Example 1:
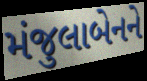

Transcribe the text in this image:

મંજુલાબેનને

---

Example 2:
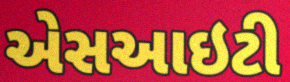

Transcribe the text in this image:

એસઆઇટી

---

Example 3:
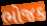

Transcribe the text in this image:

ભોજક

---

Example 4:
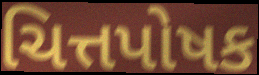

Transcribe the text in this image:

ચિત્તપોષક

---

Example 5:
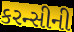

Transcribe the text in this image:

કરન્સીની